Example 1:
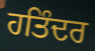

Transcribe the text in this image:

ਹਤਿੰਦਰ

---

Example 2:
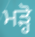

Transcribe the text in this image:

ਮੜ੍ਹੋ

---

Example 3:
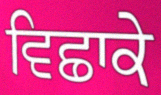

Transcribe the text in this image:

ਵਿਛਾਕੇ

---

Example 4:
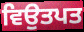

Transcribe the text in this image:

ਵਿਉਤਪਤ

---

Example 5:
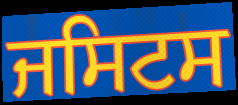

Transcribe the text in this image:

ਜਸਿਟਸ